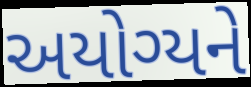
અયોગ્યને